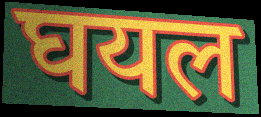
घयल